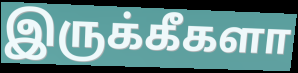
இருக்கீகளா